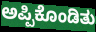
ಅಪ್ಪಿಕೊಂಡಿತು